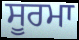
ਸੂਰਮਾ